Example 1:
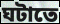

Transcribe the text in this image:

ঘটাতে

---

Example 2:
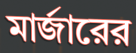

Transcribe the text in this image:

মার্জারের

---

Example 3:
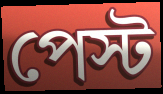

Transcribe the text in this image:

পেস্ট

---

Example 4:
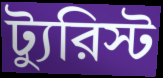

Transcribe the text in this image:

ট্যুরিস্ট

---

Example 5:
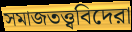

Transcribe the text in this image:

সমাজতত্ত্ববিদেরা